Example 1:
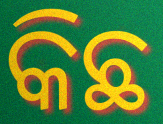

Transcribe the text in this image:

କିଛ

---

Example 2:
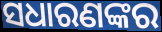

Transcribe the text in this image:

ସଧାରଣଙ୍କର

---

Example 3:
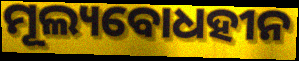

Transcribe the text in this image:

ମୂଲ୍ୟବୋଧହୀନ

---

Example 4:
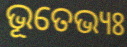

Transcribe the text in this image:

ଭୂତେଭ୍ୟଃ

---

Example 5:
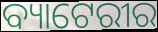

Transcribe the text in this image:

ବ୍ୟାଟେରୀର